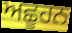
ਅਛੂਹਨ